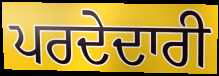
ਪਰਦੇਦਾਰੀ